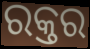
ରକ୍ତର